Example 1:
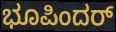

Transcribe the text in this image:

ಭೂಪಿಂದರ್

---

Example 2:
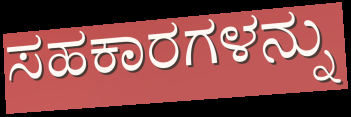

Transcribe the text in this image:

ಸಹಕಾರಗಳನ್ನು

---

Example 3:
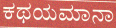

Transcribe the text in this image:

ಕಥಯಮಾನಾ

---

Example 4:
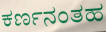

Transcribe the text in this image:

ಕರ್ಣನಂತಹ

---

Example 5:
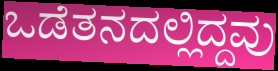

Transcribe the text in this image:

ಒಡೆತನದಲ್ಲಿದ್ದವು